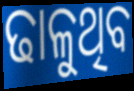
ଢାଳୁଥିବ